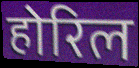
होरिल